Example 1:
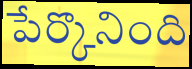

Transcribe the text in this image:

పేర్కొనింది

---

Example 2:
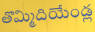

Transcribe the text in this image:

తొమ్మిదియేండ్ల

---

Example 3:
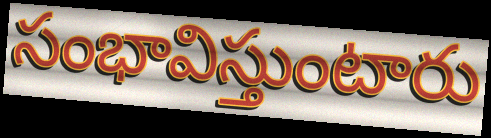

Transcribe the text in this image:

సంభావిస్తుంటారు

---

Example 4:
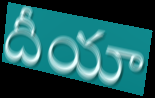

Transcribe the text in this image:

దీయా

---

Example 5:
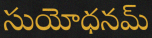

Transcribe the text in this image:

సుయోధనమ్